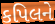
કપિલને